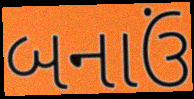
બનાઉં